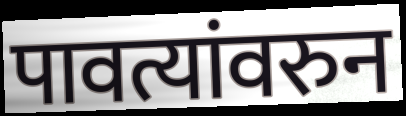
पावत्यांवरुन